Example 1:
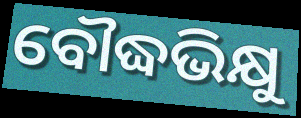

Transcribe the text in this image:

ବୌଦ୍ଧଭିକ୍ଷୁ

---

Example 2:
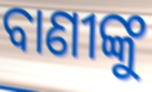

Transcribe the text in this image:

ବାଣୀଙ୍କୁ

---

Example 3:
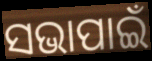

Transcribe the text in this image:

ସଭାପାଇଁ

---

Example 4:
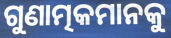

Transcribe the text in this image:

ଗୁଣାତ୍ମକମାନକୁ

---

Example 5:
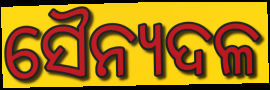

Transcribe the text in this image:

ସୈନ୍ୟଦଳ